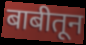
बाबीतून